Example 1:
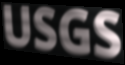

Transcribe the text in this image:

USGS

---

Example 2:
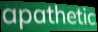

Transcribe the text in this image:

apathetic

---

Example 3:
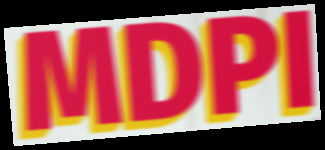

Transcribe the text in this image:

MDPI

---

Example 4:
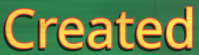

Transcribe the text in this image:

Created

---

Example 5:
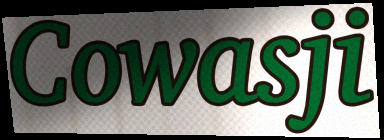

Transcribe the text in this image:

Cowasji